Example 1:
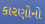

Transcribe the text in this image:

કારણોનો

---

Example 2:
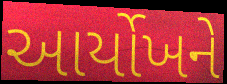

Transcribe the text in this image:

આર્યોખને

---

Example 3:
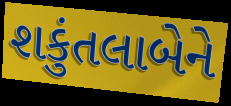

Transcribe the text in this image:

શકુંતલાબેને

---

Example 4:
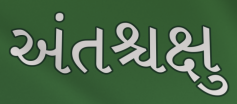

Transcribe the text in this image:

અંતશ્ચક્ષુ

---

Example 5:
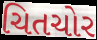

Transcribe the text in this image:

ચિતચોર